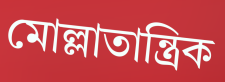
মোল্লাতান্ত্রিক